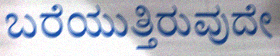
ಬರೆಯುತ್ತಿರುವುದೇ